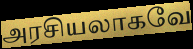
அரசியலாகவே